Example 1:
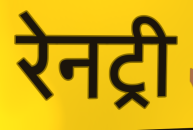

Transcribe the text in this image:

रेनट्री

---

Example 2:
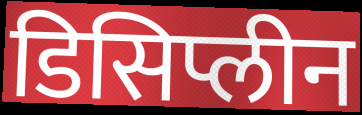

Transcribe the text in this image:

डिसिप्लीन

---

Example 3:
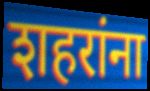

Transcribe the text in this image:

शहरांना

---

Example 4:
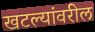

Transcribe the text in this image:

खटल्यांवरील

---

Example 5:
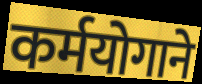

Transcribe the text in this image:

कर्मयोगाने